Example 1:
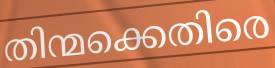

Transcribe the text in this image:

തിന്മക്കെതിരെ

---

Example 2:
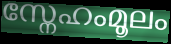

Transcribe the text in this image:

സ്നേഹംമൂലം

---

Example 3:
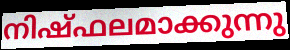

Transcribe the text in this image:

നിഷ്ഫലമാക്കുന്നു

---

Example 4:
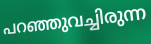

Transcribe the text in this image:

പറഞ്ഞുവച്ചിരുന്ന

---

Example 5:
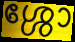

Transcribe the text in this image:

ശ്ശോ